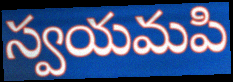
స్వయమపి